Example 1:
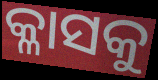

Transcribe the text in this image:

କ୍ଳାସକୁ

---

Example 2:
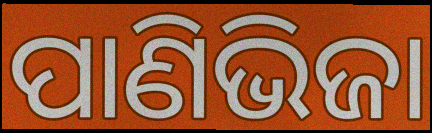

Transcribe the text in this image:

ପାଣିଭିଜା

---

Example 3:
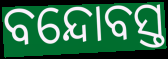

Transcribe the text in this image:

ବନ୍ଦୋବସ୍ତ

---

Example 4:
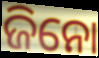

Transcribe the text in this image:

ଜିନୋ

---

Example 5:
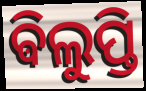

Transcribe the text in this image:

ଵିଲୁପ୍ତି